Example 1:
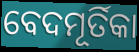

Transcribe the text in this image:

ବେଦମୂର୍ତିକା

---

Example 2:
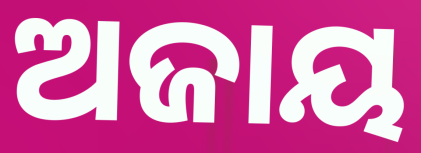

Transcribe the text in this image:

ଅଜାୟ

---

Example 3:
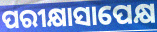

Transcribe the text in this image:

ପରୀକ୍ଷାସାପେକ୍ଷ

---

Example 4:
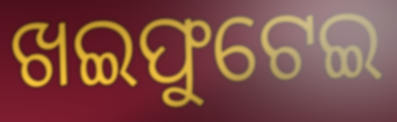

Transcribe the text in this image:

ଖଇଫୁଟେଇ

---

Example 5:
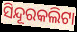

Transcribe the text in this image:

ସିନ୍ଦୂରକଲିଟା